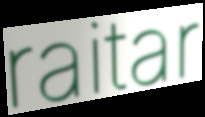
raitar